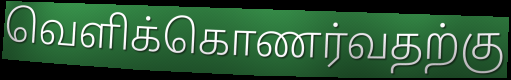
வெளிக்கொணர்வதற்கு